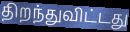
திறந்துவிட்டது